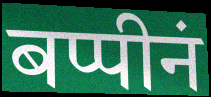
बप्पीनं